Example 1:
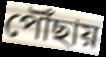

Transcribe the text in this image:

পৌঁছায়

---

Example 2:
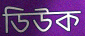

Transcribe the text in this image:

ডিউক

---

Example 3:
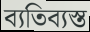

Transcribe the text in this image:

ব্যতিব্যস্ত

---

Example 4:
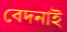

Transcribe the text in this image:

বেদনাই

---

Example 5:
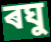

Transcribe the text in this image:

ৰঘু